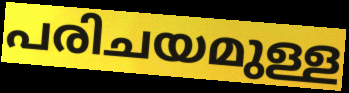
പരിചയമുള്ള